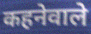
कहनेवाले